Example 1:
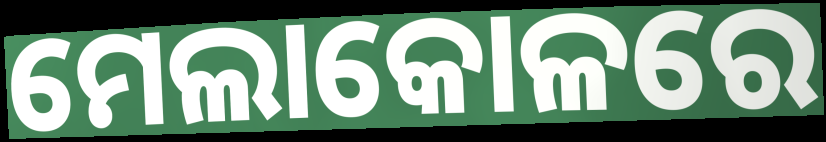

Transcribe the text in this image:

ମେଲାକୋଳରେ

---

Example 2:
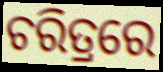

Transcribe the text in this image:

ଚରିତ୍ରରେ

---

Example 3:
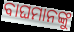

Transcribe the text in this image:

ବାଘମାନଙ୍କୁ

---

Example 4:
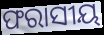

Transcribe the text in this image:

ଫରାସୀୟ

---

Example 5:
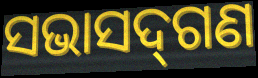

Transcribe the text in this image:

ସଭାସଦ୍‌ଗଣ